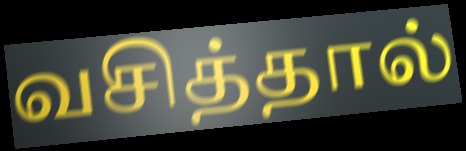
வசித்தால்